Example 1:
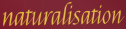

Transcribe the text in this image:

naturalisation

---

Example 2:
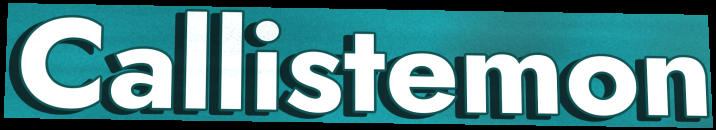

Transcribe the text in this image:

Callistemon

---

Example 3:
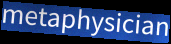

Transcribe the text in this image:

metaphysician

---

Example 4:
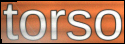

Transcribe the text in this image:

torso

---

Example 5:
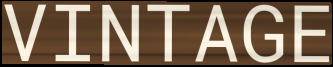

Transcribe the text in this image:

VINTAGE